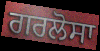
ਗਰਲੋਸਾ